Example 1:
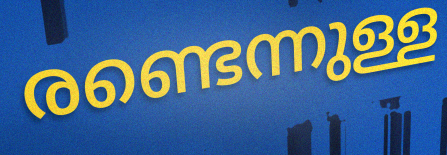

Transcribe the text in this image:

രണ്ടെന്നുള്ള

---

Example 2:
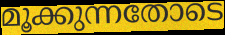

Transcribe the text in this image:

മൂക്കുന്നതോടെ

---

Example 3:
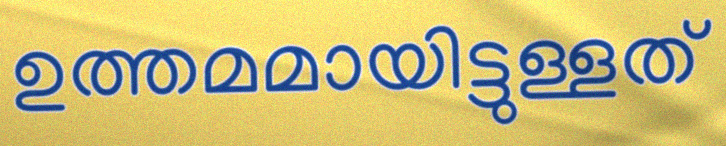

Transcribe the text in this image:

ഉത്തമമായിട്ടുള്ളത്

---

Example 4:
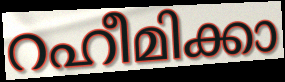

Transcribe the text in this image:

റഹീമിക്കാ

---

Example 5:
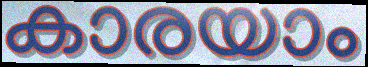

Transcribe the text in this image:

കാരയാം